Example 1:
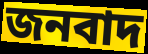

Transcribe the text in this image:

জনবাদ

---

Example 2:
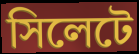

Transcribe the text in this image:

সিলেটে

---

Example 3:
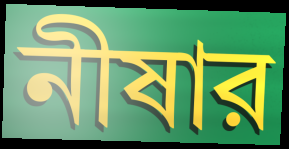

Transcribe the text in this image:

নীষার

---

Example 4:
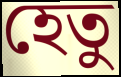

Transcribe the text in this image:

হেতু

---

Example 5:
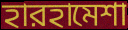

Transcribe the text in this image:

হারহামেশা